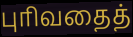
புரிவதைத்